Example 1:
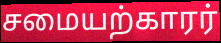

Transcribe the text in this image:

சமையற்காரர்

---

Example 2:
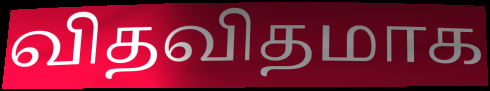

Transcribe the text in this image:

விதவிதமாக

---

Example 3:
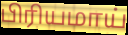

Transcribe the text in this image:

பிரியமாய்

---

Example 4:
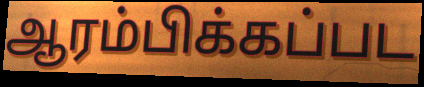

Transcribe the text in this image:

ஆரம்பிக்கப்பட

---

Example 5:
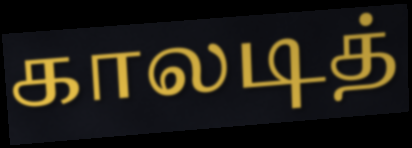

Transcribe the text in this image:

காலடித்